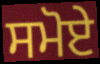
ਸਮੋਏ